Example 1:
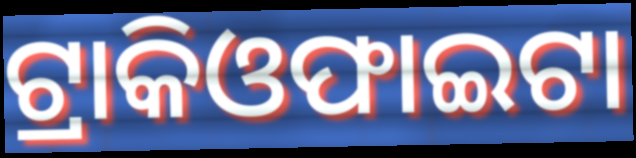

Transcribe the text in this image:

ଟ୍ରାକିଓଫାଇଟା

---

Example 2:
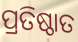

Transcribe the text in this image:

ପ୍ରତିଷ୍ଠାତ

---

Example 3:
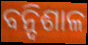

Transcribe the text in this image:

ବନ୍ଦିଶାଳ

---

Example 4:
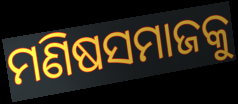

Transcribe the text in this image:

ମଣିଷସମାଜକୁ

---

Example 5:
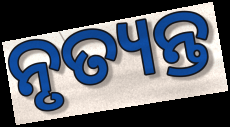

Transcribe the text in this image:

ନୃତ୍ୟନ୍ତ